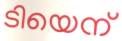
ടിയെന്